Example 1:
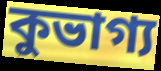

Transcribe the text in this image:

কুভাগ্য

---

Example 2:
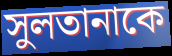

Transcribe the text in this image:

সুলতানাকে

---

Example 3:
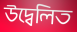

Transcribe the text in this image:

উদ্বেলিত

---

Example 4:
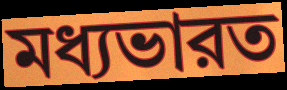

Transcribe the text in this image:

মধ্যভারত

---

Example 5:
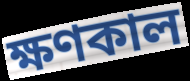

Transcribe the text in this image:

ক্ষণকাল